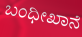
ಬಂಧೀಖಾನೆ